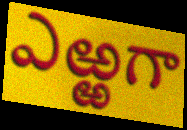
ఎఱ్ఱగా